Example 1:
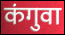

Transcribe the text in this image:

कंगुवा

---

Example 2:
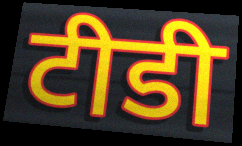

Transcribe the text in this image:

टीडी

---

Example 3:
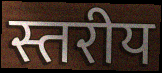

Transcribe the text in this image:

स्तरीय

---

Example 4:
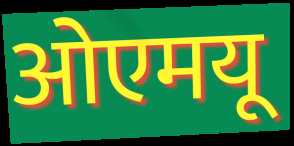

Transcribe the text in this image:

ओएमयू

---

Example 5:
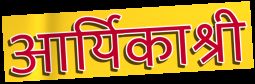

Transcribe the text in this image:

आर्यिकाश्री